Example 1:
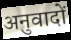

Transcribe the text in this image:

अनुवादों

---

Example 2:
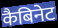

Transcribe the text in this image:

कैबिनेट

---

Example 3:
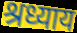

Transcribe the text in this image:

श्रध्याय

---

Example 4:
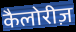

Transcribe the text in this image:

कैलोरीज़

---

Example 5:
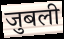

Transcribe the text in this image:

जुबली